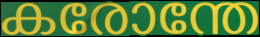
കരോന്തേ